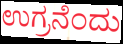
ಉಗ್ರನೆಂದು